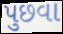
પુછવા